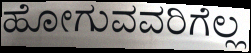
ಹೋಗುವವರಿಗೆಲ್ಲ